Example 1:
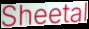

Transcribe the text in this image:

Sheetal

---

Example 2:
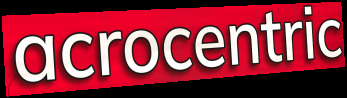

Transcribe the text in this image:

acrocentric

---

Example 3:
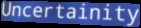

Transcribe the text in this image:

Uncertainity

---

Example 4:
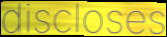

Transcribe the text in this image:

discloses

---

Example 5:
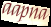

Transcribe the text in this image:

aapna